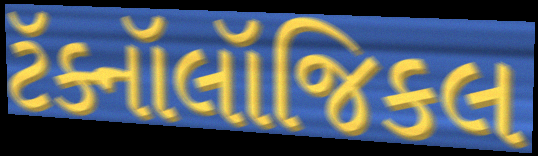
ટૅક્નૉલૉજિકલ